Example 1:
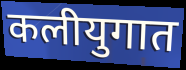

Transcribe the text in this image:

कलीयुगात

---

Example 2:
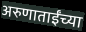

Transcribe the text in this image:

अरुणाताईंच्या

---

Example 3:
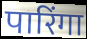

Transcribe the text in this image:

पारिंगा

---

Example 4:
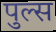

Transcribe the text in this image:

पुल्स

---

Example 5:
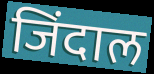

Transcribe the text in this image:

जिंदाल